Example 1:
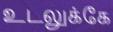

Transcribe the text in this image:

உடலுக்கே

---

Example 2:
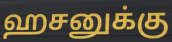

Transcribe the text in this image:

ஹசனுக்கு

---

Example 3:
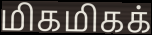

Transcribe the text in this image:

மிகமிகக்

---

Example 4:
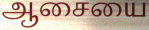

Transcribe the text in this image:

ஆசையை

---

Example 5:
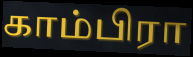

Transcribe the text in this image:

காம்பிரா